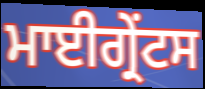
ਮਾਈਗ੍ਰੇਂਟਸ